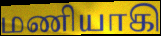
மணியாகி